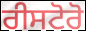
ਰੀਸਟੋਰੋ